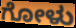
ಗೋಳು